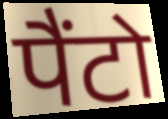
पैंटो